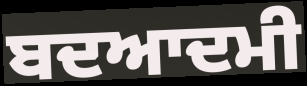
ਬਦਆਦਮੀ